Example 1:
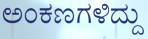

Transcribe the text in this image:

ಅಂಕಣಗಳಿದ್ದು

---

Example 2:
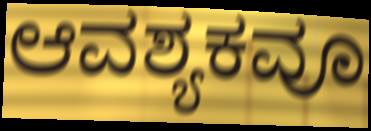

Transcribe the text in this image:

ಆವಶ್ಯಕವೂ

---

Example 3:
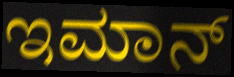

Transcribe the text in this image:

ಇಮಾನ್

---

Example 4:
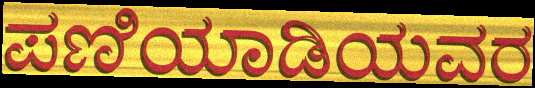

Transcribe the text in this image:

ಪಣಿಯಾಡಿಯವರ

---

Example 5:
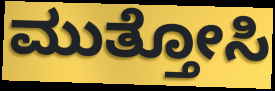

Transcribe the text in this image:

ಮುತ್ತೋಸಿ